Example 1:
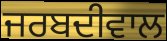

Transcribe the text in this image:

ਜਰਬਦੀਵਾਲ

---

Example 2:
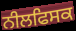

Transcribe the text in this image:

ਨੀਲਫਿਸਕ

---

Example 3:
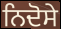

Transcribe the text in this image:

ਨਿਦੋਸੇ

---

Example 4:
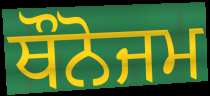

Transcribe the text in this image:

ਥੌਨੋਜਮ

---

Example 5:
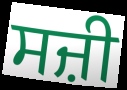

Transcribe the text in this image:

ਸਜ਼ੀ